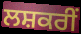
ਲਸ਼ਕਰੀਂ